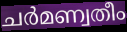
ചർമണ്വതീം